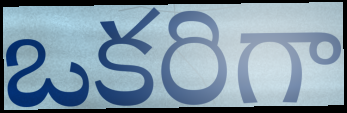
ఒకరిగా